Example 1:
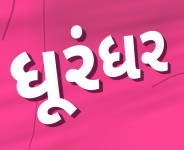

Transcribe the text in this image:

ધૂરંધર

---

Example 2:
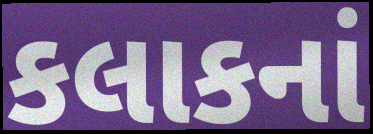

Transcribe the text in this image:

કલાકનાં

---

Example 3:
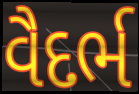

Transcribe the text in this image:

વૈદર્ભ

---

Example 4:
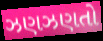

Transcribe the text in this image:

ઝણઝણતો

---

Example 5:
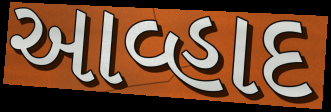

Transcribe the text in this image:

આવ્હાદ